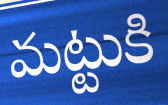
మట్టుకి